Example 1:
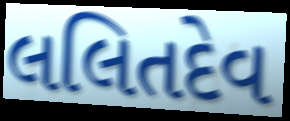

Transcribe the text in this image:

લલિતદેવ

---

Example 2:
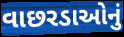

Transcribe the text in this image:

વાછરડાઓનું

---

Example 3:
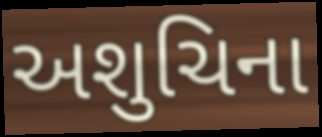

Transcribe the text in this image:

અશુચિના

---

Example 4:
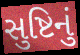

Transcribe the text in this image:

સુષ્ટિનું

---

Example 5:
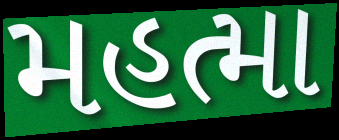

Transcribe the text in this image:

મહત્મા